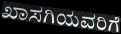
ಖಾಸಗಿಯವರಿಗೆ